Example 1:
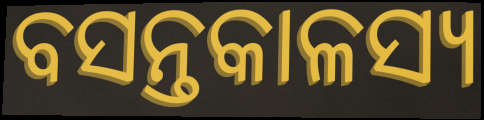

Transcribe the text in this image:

ବସନ୍ତକାଳସ୍ୟ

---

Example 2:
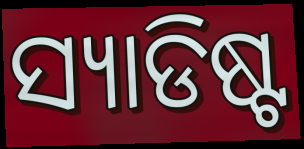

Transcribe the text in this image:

ସ୍ୟାଡିଷ୍ଟ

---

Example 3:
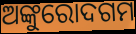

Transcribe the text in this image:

ଅଙ୍କୁରୋଦଗମ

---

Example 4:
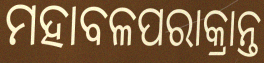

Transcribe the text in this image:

ମହାବଳପରାକ୍ରାନ୍ତ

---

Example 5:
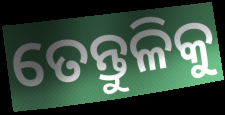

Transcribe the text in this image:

ତେନ୍ତୁଳିକୁ